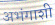
अभंगाशी